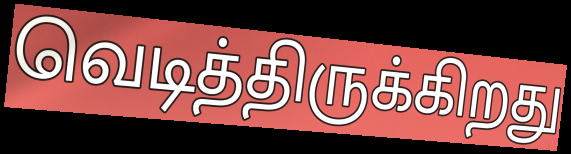
வெடித்திருக்கிறது